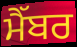
ਮੈੱਬਰ